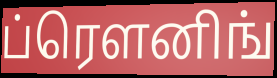
ப்ரௌனிங்